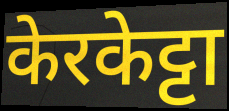
केरकेट्टा